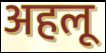
अहलू